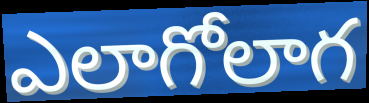
ఎలాగోలాగ